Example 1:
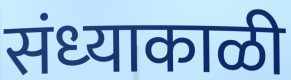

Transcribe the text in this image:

संध्‍याकाळी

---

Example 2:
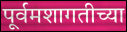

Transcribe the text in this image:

पूर्वमशागतीच्या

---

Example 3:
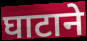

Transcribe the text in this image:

घाटाने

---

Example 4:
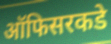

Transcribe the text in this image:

ऑफिसरकडे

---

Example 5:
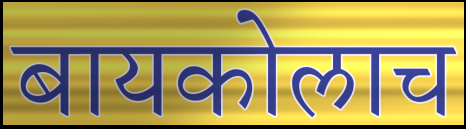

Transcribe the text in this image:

बायकोलाच